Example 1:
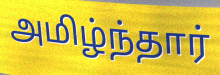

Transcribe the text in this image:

அமிழ்ந்தார்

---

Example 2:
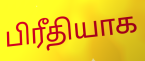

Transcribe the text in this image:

பிரீதியாக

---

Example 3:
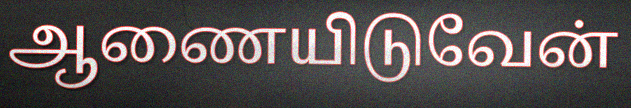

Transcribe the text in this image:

ஆணையிடுவேன்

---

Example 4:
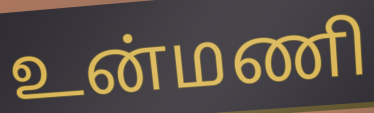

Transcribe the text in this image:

உன்மணி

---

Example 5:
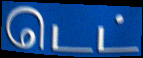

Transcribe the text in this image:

டெட்